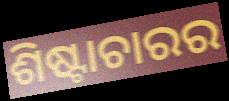
ଶିଷ୍ଟାଚାରର